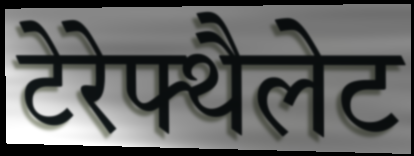
टेरेफ्थैलेट